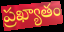
ప్రఖ్యాతం